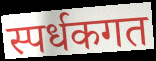
स्पर्धकगत